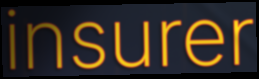
insurer